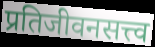
प्रतिजीवनसत्त्व